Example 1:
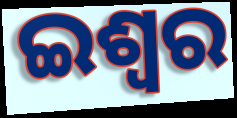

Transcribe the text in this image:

ଇଶ୍ବର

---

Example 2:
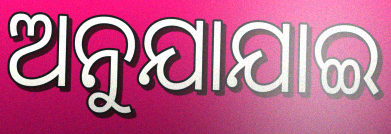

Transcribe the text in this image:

ଅନୁଯାଯାଇ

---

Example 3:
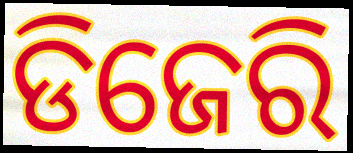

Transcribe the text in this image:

ଡିଜେରି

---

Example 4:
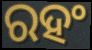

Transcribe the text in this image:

ରହଂ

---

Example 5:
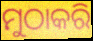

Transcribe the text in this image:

ମୁଠାକରି